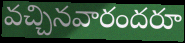
వచ్చినవారందరూ